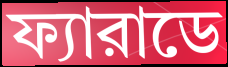
ফ্যারাডে